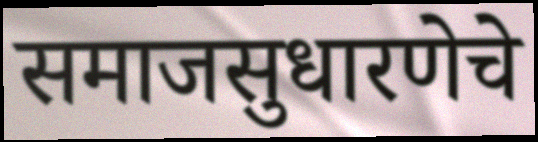
समाजसुधारणेचे